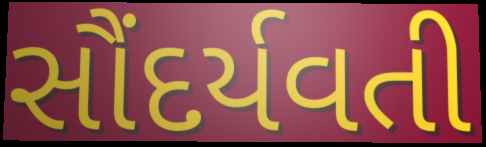
સૌંદર્યવતી